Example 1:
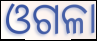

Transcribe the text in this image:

ଓଗଳା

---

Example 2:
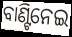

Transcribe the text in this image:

ବାଣ୍ଟିନେଇ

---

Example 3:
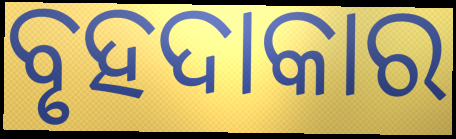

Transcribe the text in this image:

ବୃହଦାକାର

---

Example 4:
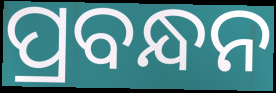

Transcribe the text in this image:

ପ୍ରବନ୍ଧନ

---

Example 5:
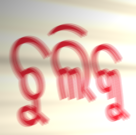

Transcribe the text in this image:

ଚୁଲିକୁ